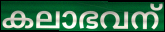
കലാഭവന്